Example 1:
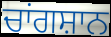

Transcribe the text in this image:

ਚਾਂਗਸ਼ਾਨ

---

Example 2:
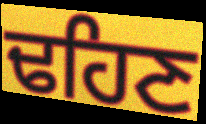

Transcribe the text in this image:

ਢਹਿਣ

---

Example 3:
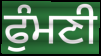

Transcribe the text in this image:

ਫੁੰਮਣੀ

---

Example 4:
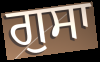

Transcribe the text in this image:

ਗੁਸਾ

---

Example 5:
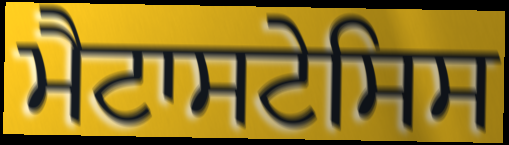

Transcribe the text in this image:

ਮੈਟਾਸਟੇਸਿਸ